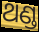
ଥଣ୍ଡ